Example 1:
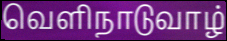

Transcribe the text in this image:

வெளிநாடுவாழ்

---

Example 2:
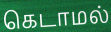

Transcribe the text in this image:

கெடாமல்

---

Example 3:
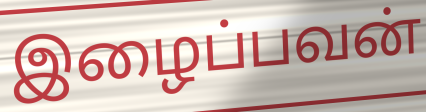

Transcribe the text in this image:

இழைப்பவன்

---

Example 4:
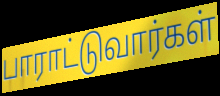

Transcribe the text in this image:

பாராட்டுவார்கள்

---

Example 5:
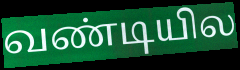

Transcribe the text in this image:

வண்டியில